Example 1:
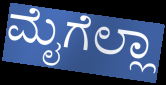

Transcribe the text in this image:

ಮೈಗೆಲ್ಲಾ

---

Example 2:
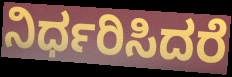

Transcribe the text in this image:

ನಿರ್ಧರಿಸಿದರೆ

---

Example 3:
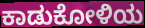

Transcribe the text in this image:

ಕಾಡುಕೋಳಿಯ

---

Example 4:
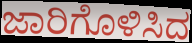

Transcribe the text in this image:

ಜಾರಿಗೊಳಿಸಿದ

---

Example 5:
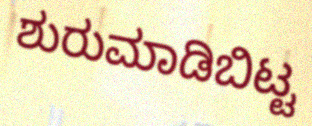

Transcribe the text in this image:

ಶುರುಮಾಡಿಬಿಟ್ಟ